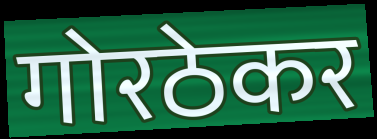
गोरठेकर